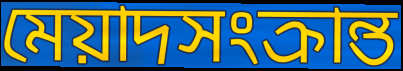
মেয়াদসংক্রান্ত